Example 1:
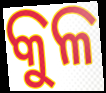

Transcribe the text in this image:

କୁଳ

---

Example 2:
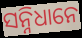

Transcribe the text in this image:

ସନ୍ନିଧାନେ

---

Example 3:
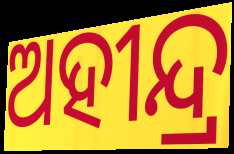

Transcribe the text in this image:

ଅହୀନ୍ଦ୍ର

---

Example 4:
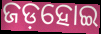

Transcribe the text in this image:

ଜଡ଼ହୋଇ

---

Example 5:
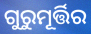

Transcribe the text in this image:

ଗୁରୁମୂର୍ତ୍ତିର